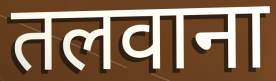
तलवाना